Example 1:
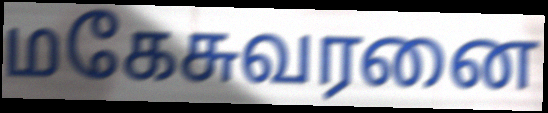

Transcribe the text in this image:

மகேசுவரனை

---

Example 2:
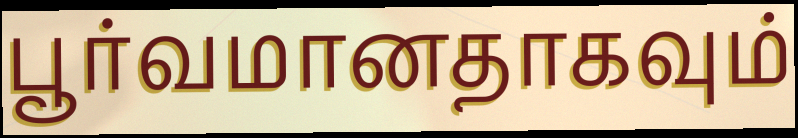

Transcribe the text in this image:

பூர்வமானதாகவும்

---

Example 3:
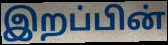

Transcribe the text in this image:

இறப்பின்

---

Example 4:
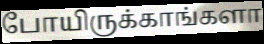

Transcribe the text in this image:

போயிருக்காங்களா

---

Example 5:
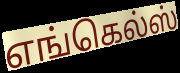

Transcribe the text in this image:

எங்கெல்ஸ்